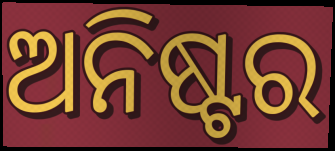
ଅନିଷ୍ଟର